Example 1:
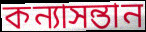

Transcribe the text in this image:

কন্যাসন্তান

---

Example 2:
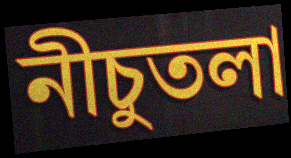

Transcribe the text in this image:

নীচুতলা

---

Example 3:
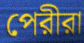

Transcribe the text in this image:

পেরীরা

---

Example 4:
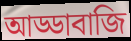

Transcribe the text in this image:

আড্ডাবাজি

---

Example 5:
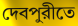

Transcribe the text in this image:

দেবপুরীতে